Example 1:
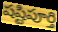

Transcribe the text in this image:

షష్టిపూర్తి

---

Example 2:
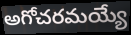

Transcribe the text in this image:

అగోచరమయ్యే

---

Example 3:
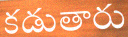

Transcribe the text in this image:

కడుతారు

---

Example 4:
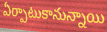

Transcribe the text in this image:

ఏర్పాటుకానున్నాయి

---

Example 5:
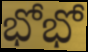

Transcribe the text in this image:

భోభో